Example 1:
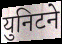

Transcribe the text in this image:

युनिटने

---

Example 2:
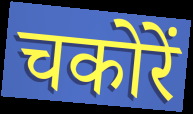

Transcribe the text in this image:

चकोरें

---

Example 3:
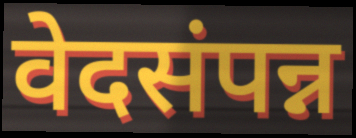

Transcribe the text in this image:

वेदसंपन्न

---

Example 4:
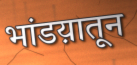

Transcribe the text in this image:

भांडय़ातून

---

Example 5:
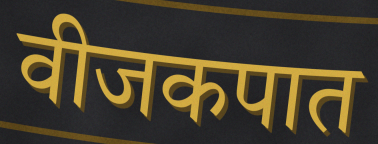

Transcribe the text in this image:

वीजकपात